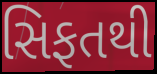
સિફતથી